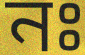
নঃ